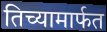
तिच्यामार्फत